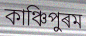
কাঞ্চিপুৰম